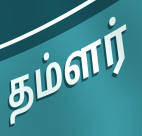
தம்ளர்